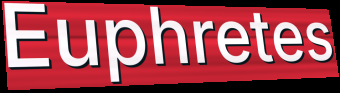
Euphretes